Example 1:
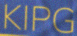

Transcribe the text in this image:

KIPG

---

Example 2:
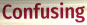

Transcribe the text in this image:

Confusing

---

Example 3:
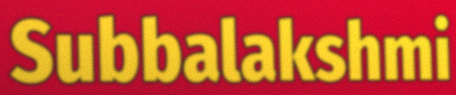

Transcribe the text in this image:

Subbalakshmi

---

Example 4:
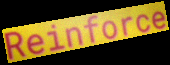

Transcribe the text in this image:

Reinforce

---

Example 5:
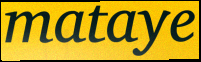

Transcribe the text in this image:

mataye